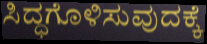
ಸಿದ್ಧಗೊಳಿಸುವುದಕ್ಕೆ